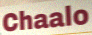
Chaalo